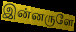
இன்னருளே